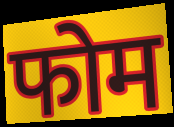
फोम